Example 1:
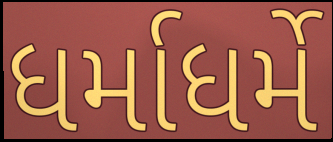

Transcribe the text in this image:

ધર્માધર્મે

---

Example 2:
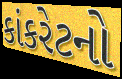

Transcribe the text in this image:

કાંકરેટનો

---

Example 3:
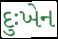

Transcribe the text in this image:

દુઃખેન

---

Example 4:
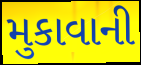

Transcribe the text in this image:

મુકાવાની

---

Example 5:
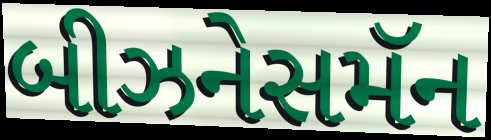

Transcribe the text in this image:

બીઝનેસમૅન